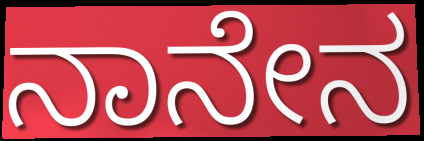
ನಾನೇನ